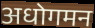
अधोगमन